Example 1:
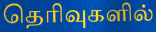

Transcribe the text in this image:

தெரிவுகளில்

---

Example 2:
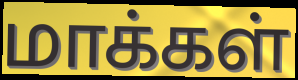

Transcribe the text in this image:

மாக்கள்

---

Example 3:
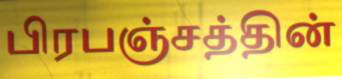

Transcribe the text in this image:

பிரபஞ்சத்தின்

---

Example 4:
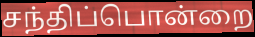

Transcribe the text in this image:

சந்திப்பொன்றை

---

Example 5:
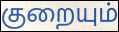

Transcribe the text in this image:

குறையும்